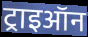
ट्राइऑन